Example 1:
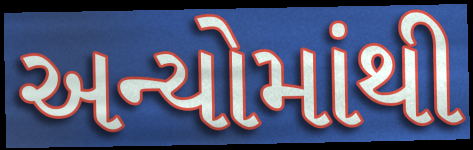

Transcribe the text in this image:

અન્યોમાંથી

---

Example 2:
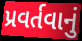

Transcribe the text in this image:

પ્રવર્તવાનું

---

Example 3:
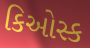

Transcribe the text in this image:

કિઓસ્ક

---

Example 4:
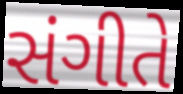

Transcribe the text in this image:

સંગીતે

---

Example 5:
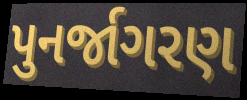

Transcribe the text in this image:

પુનર્જાગરણ